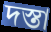
দস্তা